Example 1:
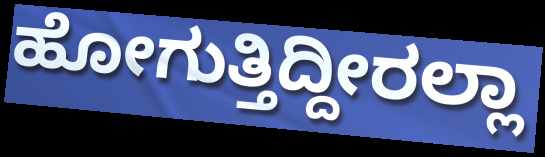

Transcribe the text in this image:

ಹೋಗುತ್ತಿದ್ದೀರಲ್ಲಾ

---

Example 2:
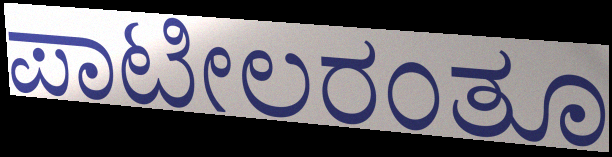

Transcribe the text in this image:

ಪಾಟೀಲರಂತೂ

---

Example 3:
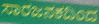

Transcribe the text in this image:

ಸಾರಜನಕದಿಂದ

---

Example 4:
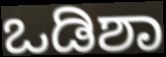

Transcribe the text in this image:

ಒಡಿಶಾ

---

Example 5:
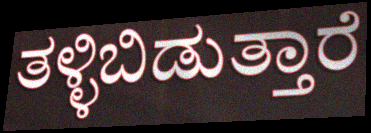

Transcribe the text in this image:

ತಳ್ಳಿಬಿಡುತ್ತಾರೆ